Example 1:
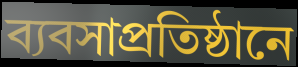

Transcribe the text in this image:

ব্যবসাপ্রতিষ্ঠানে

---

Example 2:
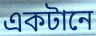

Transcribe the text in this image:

একটানে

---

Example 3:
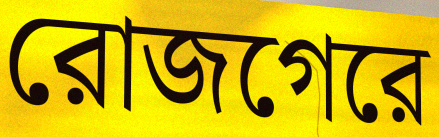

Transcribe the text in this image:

রোজগেরে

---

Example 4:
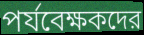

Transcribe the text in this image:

পর্যবেক্ষকদের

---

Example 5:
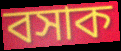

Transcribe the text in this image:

বসাক